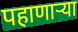
पहाणार्‍या